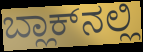
ಬ್ಲಾಕ್‌ನಲ್ಲಿ